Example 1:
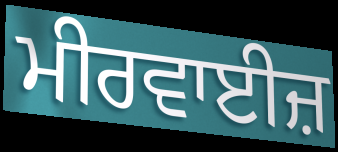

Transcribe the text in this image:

ਮੀਰਵਾਈਜ਼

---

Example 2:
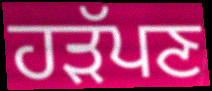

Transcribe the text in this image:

ਹੜੱਪਣ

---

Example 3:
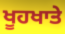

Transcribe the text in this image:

ਖੂਹਖਾਤੇ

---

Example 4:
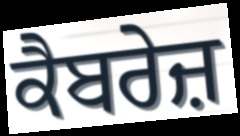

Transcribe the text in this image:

ਕੈਬਰੇਜ਼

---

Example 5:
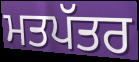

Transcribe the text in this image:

ਮਤਪੱਤਰ